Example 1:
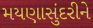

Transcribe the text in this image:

મયણાસુંદરીને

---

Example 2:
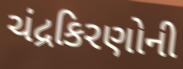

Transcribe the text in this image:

ચંદ્રકિરણોની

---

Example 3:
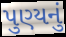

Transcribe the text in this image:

પુણ્યનું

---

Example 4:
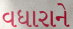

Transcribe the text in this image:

વધારાને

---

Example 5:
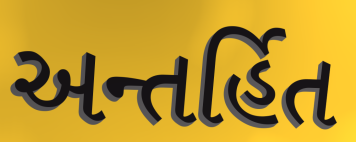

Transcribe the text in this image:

અન્તર્હિત